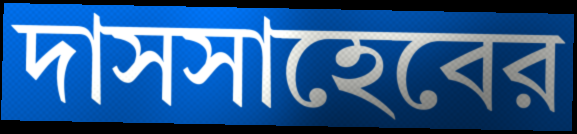
দাসসাহেবের